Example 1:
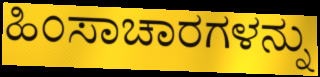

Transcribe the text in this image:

ಹಿಂಸಾಚಾರಗಳನ್ನು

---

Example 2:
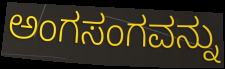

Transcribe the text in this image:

ಅಂಗಸಂಗವನ್ನು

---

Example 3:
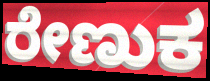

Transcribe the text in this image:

ರೇಣುಕ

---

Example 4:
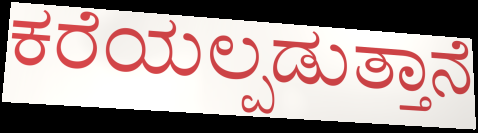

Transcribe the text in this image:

ಕರೆಯಲ್ಪಡುತ್ತಾನೆ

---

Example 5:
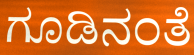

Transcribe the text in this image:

ಗೂಡಿನಂತೆ